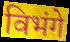
विभंगे